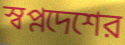
স্বপ্নদেশের